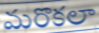
మరొకలా